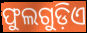
ଫୁଲଗୁଡ଼ିଏ